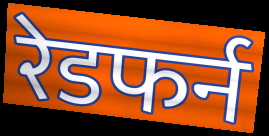
रेडफर्न